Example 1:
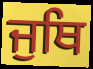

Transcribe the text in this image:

ਜੁਥਿ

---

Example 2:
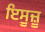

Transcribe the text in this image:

ਇਸੂਜ਼ੂ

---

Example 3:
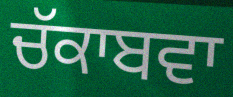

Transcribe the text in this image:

ਚੱਕਾਬਵਾ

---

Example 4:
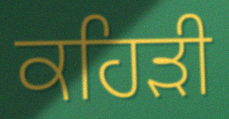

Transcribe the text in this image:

ਕਹਿੜੀ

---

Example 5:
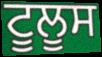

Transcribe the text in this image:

ਟੂਲੂਸ